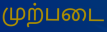
முற்படை